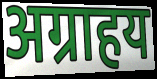
अग्राहय